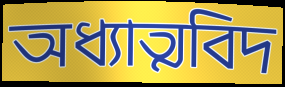
অধ্যাত্মবিদ